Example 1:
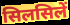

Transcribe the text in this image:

सिलसिलें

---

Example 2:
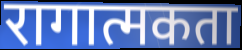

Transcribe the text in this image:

रागात्मकता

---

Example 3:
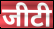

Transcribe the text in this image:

जीटी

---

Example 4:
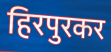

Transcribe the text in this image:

हिरपुरकर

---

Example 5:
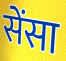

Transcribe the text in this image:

सेंसा